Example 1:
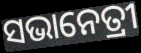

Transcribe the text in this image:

ସଭାନେତ୍ରୀ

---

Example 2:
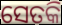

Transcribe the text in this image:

ସେତକି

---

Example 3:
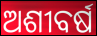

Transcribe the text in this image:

ଅଶୀବର୍ଷ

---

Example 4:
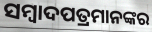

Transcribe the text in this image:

ସମ୍ୱାଦପତ୍ରମାନଙ୍କର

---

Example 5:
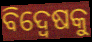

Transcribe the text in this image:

ବିଦ୍ବେଷକୁ